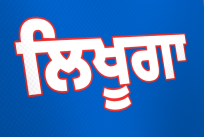
ਲਿਖੂਗਾ